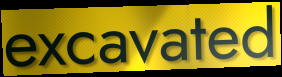
excavated